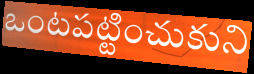
ఒంటపట్టించుకుని